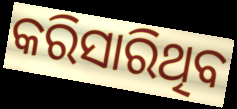
କରିସାରିଥିବ